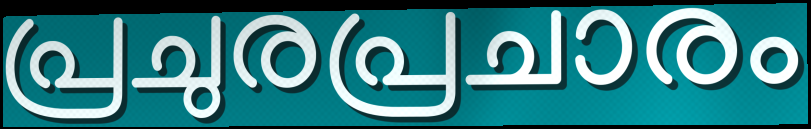
പ്രചുരപ്രചാരം